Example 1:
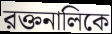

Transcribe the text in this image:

রক্তনালিকে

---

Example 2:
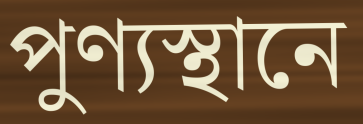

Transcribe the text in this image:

পুণ্যস্থানে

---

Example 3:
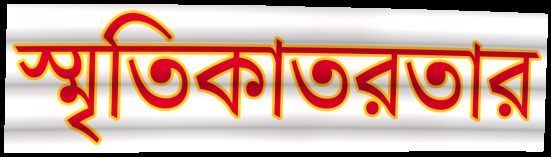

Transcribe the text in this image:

স্মৃতিকাতরতার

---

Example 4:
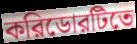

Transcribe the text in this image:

করিডোরটিতে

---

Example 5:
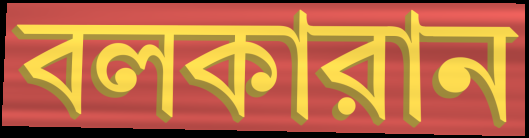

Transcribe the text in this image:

বলকারান